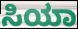
ಸಿಯಾ